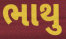
ભાથુ